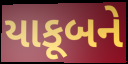
યાકૂબને